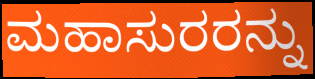
ಮಹಾಸುರರನ್ನು